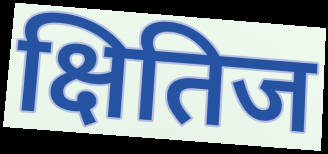
क्षितिज